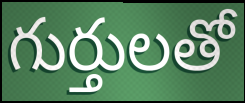
గుర్తులతో